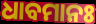
ଧାବମାନଃ